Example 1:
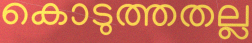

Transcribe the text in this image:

കൊടുത്തതല്ല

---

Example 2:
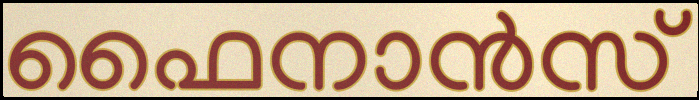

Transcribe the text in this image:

ഫൈനാൻസ്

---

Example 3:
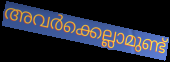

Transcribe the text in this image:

അവർക്കെല്ലാമുണ്ട്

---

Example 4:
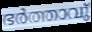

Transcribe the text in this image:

ഭർത്താവു്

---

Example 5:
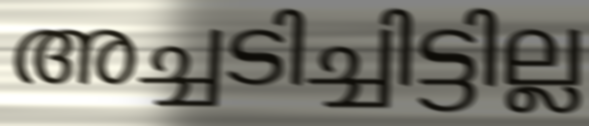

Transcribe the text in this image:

അച്ചടിച്ചിട്ടില്ല